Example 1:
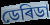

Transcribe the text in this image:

ডেৰিডা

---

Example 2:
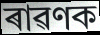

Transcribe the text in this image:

ৰাৱণক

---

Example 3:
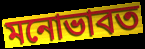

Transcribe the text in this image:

মনোভাবত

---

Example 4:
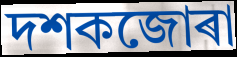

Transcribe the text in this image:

দশকজোৰা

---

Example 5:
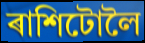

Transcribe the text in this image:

ৰাশিটোলৈ